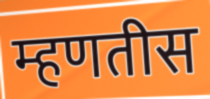
म्हणतीस